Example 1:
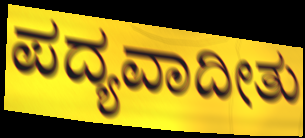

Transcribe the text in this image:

ಪದ್ಯವಾದೀತು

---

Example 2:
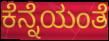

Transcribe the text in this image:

ಕೆನ್ನೆಯಂತೆ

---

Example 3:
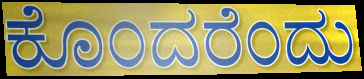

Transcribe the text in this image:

ಕೊಂದರೆಂದು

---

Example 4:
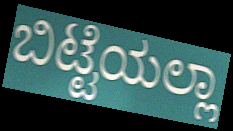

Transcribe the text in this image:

ಬಿಟ್ಟೆಯಲ್ಲಾ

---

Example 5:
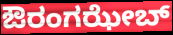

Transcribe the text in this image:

ಔರಂಗಝೇಬ್